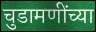
चुडामणींच्या